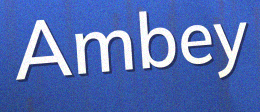
Ambey